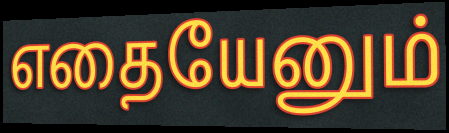
எதையேனும்